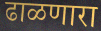
ढाळणारा